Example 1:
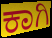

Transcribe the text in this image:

ಕಾಗಿ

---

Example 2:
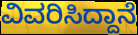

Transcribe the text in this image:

ವಿವರಿಸಿದ್ದಾನೆ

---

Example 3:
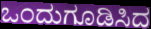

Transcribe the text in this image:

ಒಂದುಗೂಡಿಸಿದ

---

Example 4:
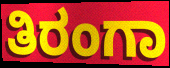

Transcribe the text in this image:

ತಿರಂಗಾ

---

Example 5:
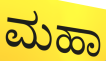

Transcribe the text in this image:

ಮಹಾ